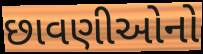
છાવણીઓનો